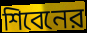
শিবেনের